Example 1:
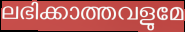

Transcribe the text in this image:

ലഭിക്കാത്തവളുമേ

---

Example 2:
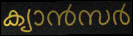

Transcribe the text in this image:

ക്യാൻസർ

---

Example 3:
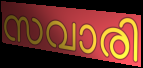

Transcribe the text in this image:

സവാരി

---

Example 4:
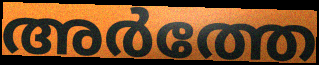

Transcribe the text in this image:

അർത്തേ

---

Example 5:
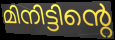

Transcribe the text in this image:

മിനിട്ടിന്റെ